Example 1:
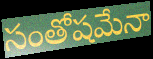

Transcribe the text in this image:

సంతోషమేనా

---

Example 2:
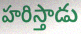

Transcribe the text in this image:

హరిస్తాడు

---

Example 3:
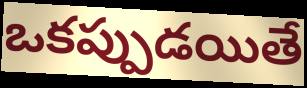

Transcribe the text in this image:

ఒకప్పుడయితే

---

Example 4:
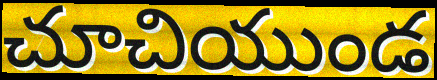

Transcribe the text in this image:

చూచియుండ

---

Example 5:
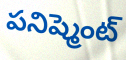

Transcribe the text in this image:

పనిష్మెంట్